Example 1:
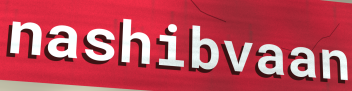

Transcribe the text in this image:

nashibvaan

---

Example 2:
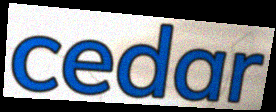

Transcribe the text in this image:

cedar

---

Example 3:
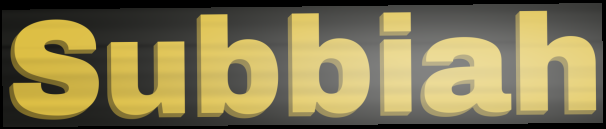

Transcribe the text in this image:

Subbiah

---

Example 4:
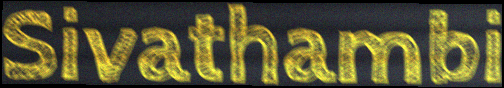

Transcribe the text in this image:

Sivathambi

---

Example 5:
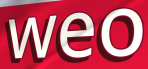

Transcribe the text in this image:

weo